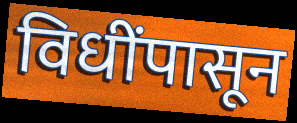
विधींपासून